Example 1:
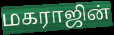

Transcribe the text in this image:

மகராஜின்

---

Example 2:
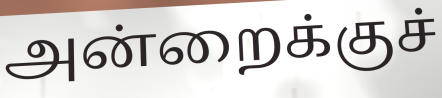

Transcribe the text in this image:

அன்றைக்குச்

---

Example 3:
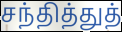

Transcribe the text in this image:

சந்தித்துத்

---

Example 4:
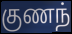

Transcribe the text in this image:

குணந்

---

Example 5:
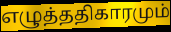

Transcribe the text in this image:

எழுத்ததிகாரமும்